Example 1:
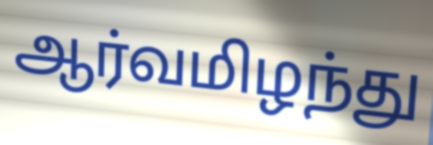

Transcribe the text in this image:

ஆர்வமிழந்து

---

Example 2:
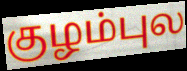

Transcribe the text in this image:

குழம்புல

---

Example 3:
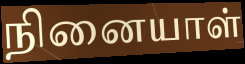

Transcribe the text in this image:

நினையாள்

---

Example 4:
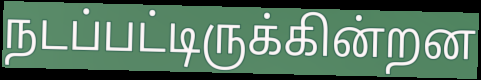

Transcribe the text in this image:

நடப்பட்டிருக்கின்றன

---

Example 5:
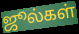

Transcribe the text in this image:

ஜூல்கள்